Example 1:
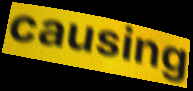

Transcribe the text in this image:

causing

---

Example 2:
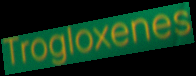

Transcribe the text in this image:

Trogloxenes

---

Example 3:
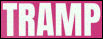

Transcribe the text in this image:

TRAMP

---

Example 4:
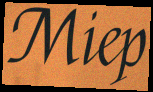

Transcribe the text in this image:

Miep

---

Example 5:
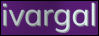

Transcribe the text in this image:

ivargal